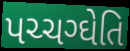
પચ્ચગ્ઘેતિ